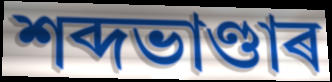
শব্দভাণ্ডাৰ